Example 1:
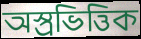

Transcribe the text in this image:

অস্ত্রভিত্তিক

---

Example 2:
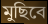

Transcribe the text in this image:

মুছিবে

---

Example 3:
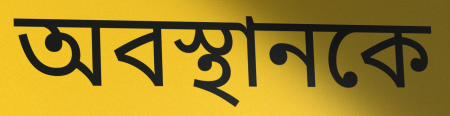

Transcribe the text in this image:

অবস্থানকে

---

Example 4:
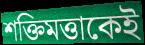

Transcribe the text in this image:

শক্তিমত্তাকেই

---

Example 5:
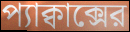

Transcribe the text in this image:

প্যাক্বাক্সের